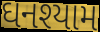
ઘનશ્યામ